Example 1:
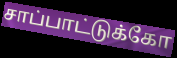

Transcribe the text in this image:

சாப்பாட்டுக்கோ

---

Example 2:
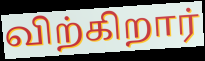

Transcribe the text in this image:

விற்கிறார்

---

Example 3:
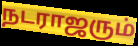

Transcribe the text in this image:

நடராஜரும்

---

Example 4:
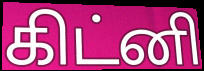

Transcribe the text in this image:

கிட்னி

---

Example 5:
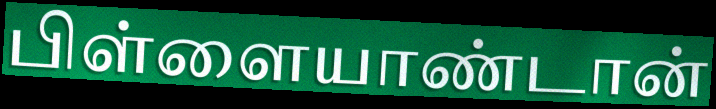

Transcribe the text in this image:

பிள்ளையாண்டான்